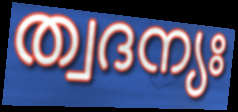
ത്വദന്യഃ